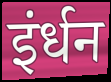
इंर्धन